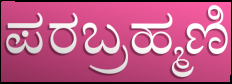
ಪರಬ್ರಹ್ಮಣಿ